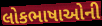
લોકભાષાઓની